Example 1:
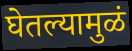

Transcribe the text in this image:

घेतल्यामुळं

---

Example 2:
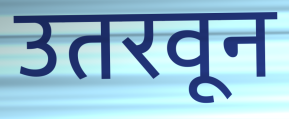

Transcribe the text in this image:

उतरवून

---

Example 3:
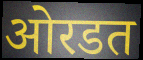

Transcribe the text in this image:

ओरडत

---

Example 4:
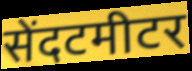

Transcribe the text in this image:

सेंदटमीटर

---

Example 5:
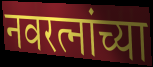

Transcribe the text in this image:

नवरत्नांच्या